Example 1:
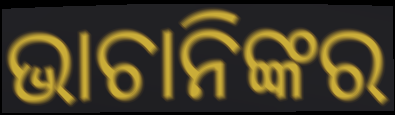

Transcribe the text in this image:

ଭାଚାନିଙ୍କର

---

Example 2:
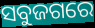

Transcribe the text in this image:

ସବୁଜଗରେ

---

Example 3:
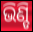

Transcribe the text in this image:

ଭିଣ୍ଡି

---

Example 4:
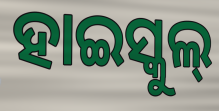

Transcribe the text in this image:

ହାଇସ୍କୁଲ୍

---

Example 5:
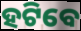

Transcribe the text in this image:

ହଟିବେ